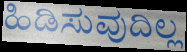
ಹಿಡಿಸುವುದಿಲ್ಲ